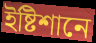
ইষ্টিশানে